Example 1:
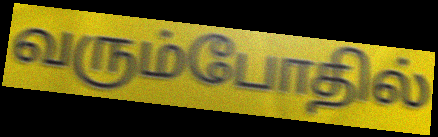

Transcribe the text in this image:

வரும்போதில்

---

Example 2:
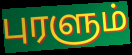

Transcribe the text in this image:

புரளும்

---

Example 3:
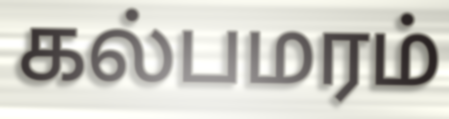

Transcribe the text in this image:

கல்பமரம்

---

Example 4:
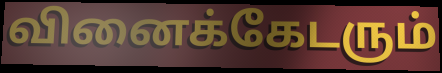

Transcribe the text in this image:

வினைக்கேடரும்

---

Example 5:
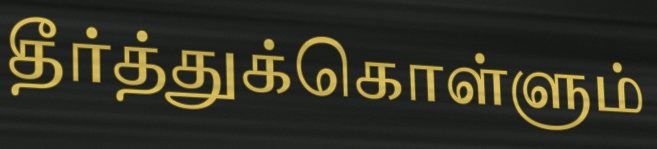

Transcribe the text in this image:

தீர்த்துக்கொள்ளும்